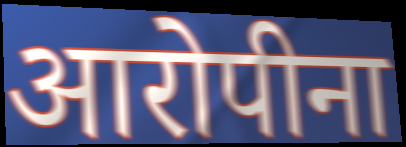
आरोपीना